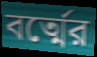
বর্ত্মের